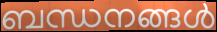
ബന്ധനങ്ങൾ